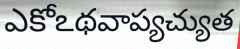
ఎకోఽథవాప్యచ్యుత